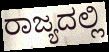
ರಾಜ್ಯದಲ್ಲಿ